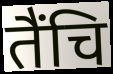
तैंचि